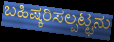
ಬಹಿಷ್ಕರಿಸಲ್ಪಟ್ಟನು